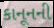
કાનૂનની